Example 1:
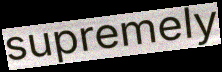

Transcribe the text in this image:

supremely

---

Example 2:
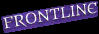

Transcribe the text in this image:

FRONTLINE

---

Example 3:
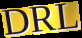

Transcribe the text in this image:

DRL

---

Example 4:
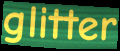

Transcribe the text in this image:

glitter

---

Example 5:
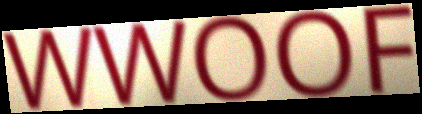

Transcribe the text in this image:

WWOOF